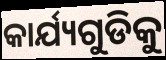
କାର୍ଯ୍ୟଗୁଡିକୁ